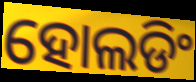
ହୋଲଡିଂ